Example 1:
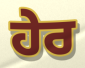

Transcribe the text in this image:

ਹੇਰ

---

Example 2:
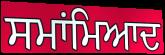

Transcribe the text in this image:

ਸਮਾਂਮਿਆਦ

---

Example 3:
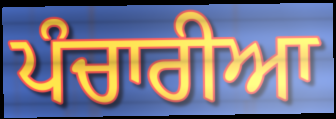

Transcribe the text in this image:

ਪੰਚਾਰੀਆ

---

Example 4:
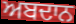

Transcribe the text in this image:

ਅਬਦਾਨ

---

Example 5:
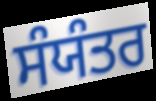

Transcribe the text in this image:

ਸੰਯੰਤਰ